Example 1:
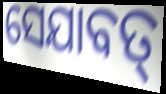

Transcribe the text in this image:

ସେଯାବତ୍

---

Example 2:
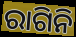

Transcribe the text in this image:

ରାଗିନି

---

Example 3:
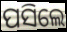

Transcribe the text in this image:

ପସିଲେ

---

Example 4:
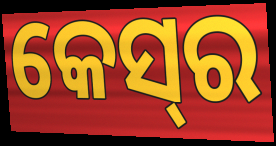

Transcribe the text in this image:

କେସ୍‌ର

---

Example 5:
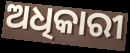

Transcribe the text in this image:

ଅଧିକାରୀ